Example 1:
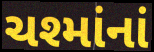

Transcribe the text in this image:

ચશ્માંનાં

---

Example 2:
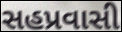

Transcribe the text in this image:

સહપ્રવાસી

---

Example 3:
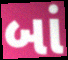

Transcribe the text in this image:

બાં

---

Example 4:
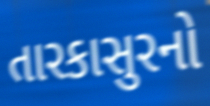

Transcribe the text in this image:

તારકાસુરનો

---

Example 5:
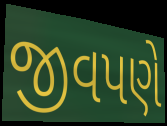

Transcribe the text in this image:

જીવપણે